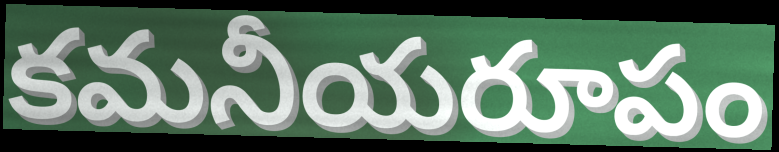
కమనీయరూపం